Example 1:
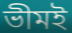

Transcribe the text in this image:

ভীমই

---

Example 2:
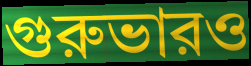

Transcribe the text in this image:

গুরুভারও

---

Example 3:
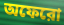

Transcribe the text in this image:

অফেরো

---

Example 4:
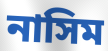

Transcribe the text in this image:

নাসিম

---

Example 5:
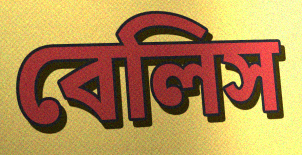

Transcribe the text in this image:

বেলিস